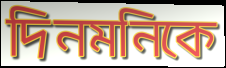
দিনমনিকে